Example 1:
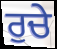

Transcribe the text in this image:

ਰੁਚੇ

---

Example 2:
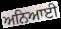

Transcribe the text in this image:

ਅਨਿਆਈ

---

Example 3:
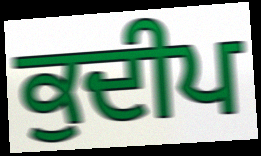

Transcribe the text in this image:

ਕੁਦੀਪ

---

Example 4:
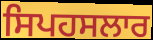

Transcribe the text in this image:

ਸਿਪਹਸਲਾਰ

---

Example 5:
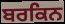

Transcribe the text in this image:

ਬਰਕਿਨ